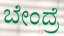
ಬೇಂದ್ರೆ